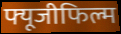
फ्यूजीफिल्म